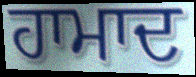
ਹਾਮਾਦ